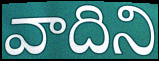
వాదిని